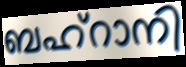
ബഹ്റാനി